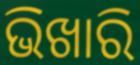
ଭିଖାରି